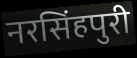
नरसिंहपुरी